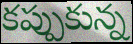
కప్పుకున్న